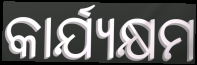
କାର୍ଯ୍ୟକ୍ଷମ